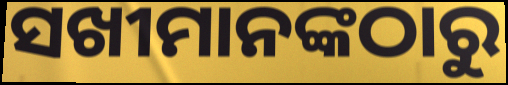
ସଖୀମାନଙ୍କଠାରୁ